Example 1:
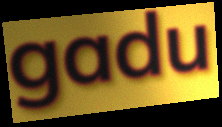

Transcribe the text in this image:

gadu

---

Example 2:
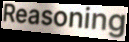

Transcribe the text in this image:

Reasoning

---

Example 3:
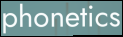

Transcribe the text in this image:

phonetics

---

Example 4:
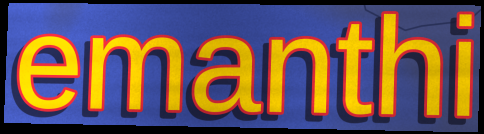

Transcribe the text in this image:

emanthi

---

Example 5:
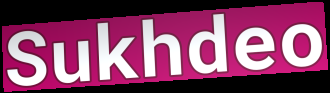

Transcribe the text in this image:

Sukhdeo